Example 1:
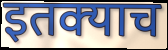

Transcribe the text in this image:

इतक्याच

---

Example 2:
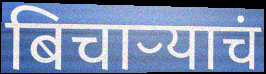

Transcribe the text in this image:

बिचाऱ्याचं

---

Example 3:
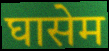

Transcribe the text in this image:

घासेम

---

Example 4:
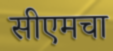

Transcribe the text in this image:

सीएमचा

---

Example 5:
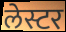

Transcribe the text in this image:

लेस्टर